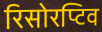
रिसोरप्टिव